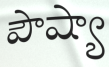
పౌష్యా